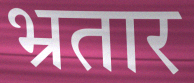
भ्रतार